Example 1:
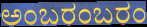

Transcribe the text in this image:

ಅಂಬರಂಬರಂ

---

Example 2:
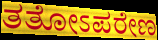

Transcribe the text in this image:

ತತೋಽಪರೇಣ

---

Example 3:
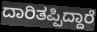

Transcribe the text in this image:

ದಾರಿತಪ್ಪಿದ್ದಾರೆ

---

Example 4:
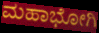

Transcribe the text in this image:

ಮಹಾಭೋಗಿ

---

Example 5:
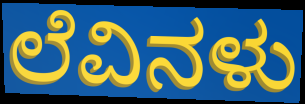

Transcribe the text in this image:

ಲೆವಿನಳು